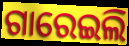
ଗାରେଇଲି